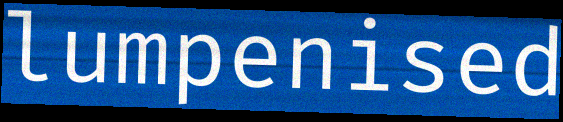
lumpenised